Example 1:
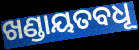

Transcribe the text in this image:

ଖଣ୍ଡାୟତବଧୂ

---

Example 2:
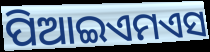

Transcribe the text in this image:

ପିଆଇଏମଏସ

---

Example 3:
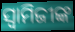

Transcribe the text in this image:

ସ୍ବାମିଜୀଙ୍କ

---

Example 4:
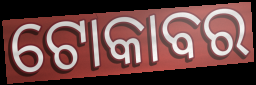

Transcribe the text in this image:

ଟୋକାବର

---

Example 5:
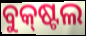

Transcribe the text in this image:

ବୁକ୍‌ଷ୍ଟଲ